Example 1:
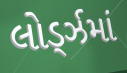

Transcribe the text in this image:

લોર્ડ્ઝમાં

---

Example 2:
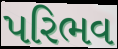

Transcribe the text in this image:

પરિભવ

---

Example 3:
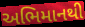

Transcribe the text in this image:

અભિમાનથી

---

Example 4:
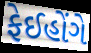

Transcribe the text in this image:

ફેઈહોંગે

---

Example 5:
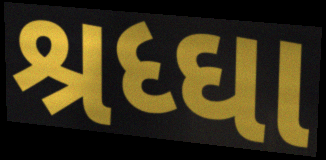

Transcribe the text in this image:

શ્રધ્ઘા